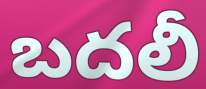
బదలీ